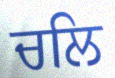
ਚਲਿ